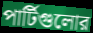
পার্টিগুলোর